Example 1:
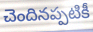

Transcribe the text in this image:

చెందినప్పటికీ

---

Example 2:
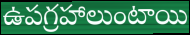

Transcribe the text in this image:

ఉపగ్రహాలుంటాయి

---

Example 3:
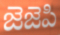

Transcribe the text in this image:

జెజెపి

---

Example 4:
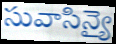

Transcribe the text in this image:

సువాసిన్యై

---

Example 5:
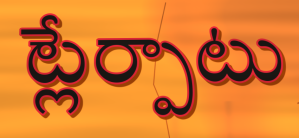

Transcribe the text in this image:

ట్లేర్పాటు